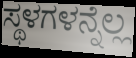
ಸ್ಥಳಗಳನ್ನೆಲ್ಲ